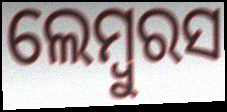
ଲେମ୍ବୁରସ